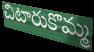
చిటారుకొమ్మ